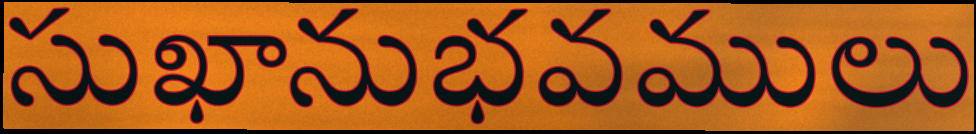
సుఖానుభవములు